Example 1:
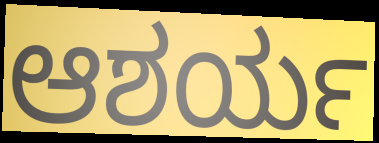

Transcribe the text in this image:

ಆಶರ್ಯ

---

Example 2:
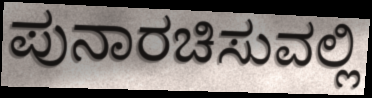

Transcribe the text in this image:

ಪುನಾರಚಿಸುವಲ್ಲಿ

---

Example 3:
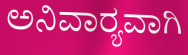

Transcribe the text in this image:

ಅನಿವಾರ‍್ಯವಾಗಿ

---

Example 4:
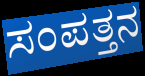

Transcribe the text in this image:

ಸಂಪತ್ತನ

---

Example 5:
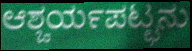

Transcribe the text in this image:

ಆಶ್ಚರ್ಯಪಟ್ಟನು